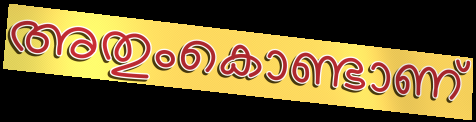
അതുംകൊണ്ടാണ്